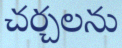
చర్చలను